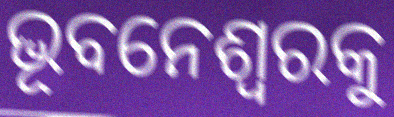
ଭୂବନେଶ୍ୱରକୁ